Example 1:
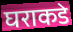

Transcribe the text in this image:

घराकडे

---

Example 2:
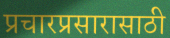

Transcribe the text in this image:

प्रचारप्रसारासाठी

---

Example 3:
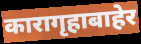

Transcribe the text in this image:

कारागृहाबाहेर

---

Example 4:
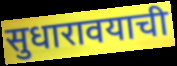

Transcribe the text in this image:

सुधारावयाची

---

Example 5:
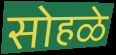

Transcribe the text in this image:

सोहळे